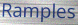
Ramples